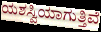
ಯಶಸ್ವಿಯಾಗುತ್ತಿವೆ